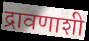
द्रावणाशी